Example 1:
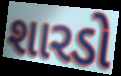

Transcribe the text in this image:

શારડો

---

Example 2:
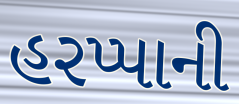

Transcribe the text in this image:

હરપ્પાની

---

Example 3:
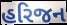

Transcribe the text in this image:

હરિજન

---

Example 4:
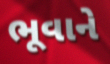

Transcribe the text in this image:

ભૂવાને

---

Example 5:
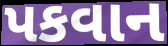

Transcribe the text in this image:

પકવાન